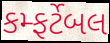
કમ્ફર્ટેબલ